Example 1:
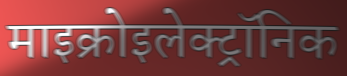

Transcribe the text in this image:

माइक्रोइलेक्ट्रॉनिक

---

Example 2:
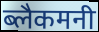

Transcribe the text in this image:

ब्लैकमनी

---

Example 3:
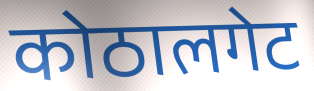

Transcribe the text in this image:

कोठालगेट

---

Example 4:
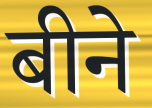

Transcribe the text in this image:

बीने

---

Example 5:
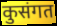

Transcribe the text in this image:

कुसंगत